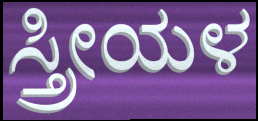
ಸ್ತ್ರೀಯಳ